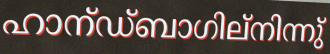
ഹാന്ഡ്ബാഗില്നിന്നു്